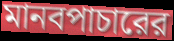
মানবপাচারের